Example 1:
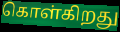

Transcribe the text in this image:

கொள்கிறது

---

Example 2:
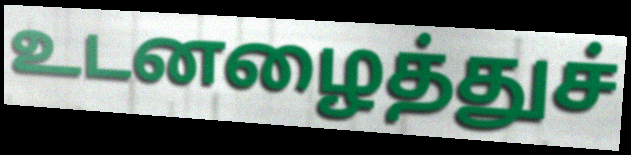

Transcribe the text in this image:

உடனழைத்துச்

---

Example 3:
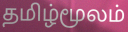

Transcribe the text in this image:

தமிழ்மூலம்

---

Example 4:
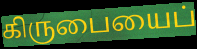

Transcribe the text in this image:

கிருபையைப்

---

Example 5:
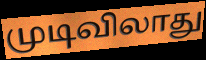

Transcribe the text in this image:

முடிவிலாது